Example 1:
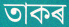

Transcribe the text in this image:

তাকৰ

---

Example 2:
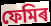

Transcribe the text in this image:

ফেমিৰ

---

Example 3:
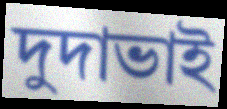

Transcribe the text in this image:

দুদাভাই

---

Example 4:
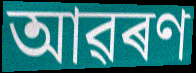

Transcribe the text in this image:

আৱৰণ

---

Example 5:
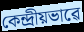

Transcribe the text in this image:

কেন্দ্ৰীয়ভাৱে